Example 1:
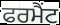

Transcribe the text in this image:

ਫਰਮੈਂਟ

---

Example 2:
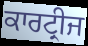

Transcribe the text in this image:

ਕਾਰਟ੍ਰੀਜ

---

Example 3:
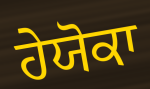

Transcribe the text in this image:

ਹੇਯੋਕਾ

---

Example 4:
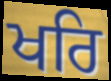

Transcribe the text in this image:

ਖਰਿ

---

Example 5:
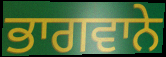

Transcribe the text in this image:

ਭਾਗਵਾਨੇ